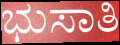
ಭುಸಾತಿ